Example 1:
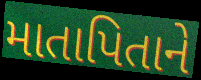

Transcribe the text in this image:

માતાપિતાને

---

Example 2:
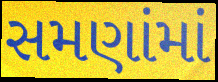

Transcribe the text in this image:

સમણાંમાં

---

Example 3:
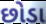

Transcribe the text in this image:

છોડા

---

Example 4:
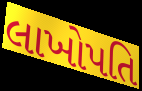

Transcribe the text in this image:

લાખોપતિ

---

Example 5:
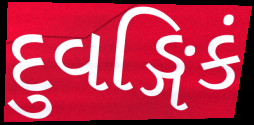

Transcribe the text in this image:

દુવઙ્ગિકં